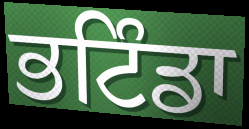
ਭਟਿੰਡਾ